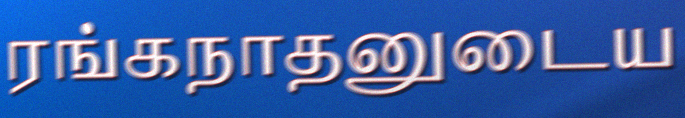
ரங்கநாதனுடைய